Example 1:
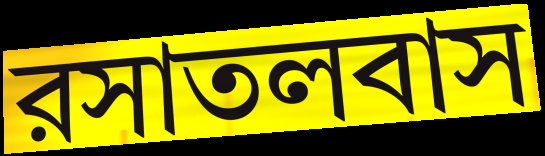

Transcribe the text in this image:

রসাতলবাস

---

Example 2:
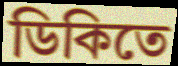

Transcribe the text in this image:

ডিকিতে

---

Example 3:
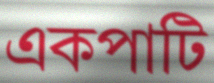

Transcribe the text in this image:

একপাটি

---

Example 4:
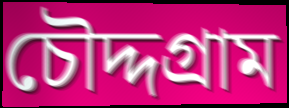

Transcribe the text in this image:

চৌদ্দগ্রাম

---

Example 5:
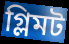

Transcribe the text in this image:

গ্লিমট